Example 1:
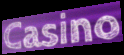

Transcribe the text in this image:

Casino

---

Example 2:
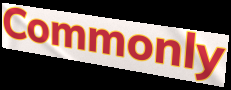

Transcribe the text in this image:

Commonly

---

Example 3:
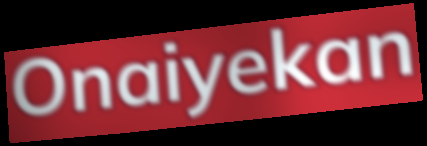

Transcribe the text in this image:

Onaiyekan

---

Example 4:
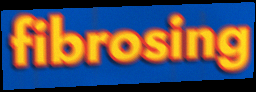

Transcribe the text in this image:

fibrosing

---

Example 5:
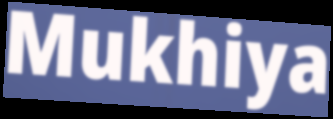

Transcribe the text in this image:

Mukhiya